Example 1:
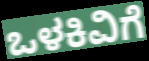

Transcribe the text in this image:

ಒಳಕಿವಿಗೆ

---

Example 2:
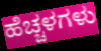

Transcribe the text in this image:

ಹೆಚ್ಚಳಗಳು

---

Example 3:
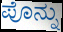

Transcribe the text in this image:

ಪೊನ್ನು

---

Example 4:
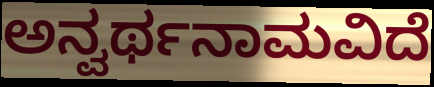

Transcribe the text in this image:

ಅನ್ವರ್ಥನಾಮವಿದೆ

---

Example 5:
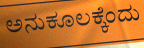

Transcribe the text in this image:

ಅನುಕೂಲಕ್ಕೆಂದು